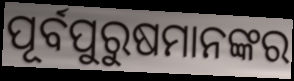
ପୂର୍ବପୁରୁଷମାନଙ୍କର